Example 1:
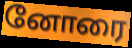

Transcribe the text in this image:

னோரை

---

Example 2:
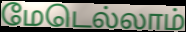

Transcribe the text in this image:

மேடெல்லாம்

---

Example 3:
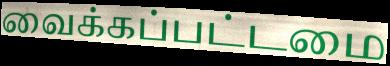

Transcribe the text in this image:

வைக்கப்பட்டமை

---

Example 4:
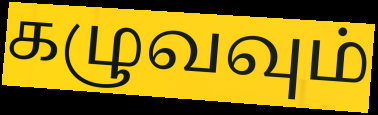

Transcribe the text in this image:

கழுவவும்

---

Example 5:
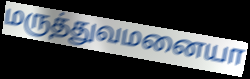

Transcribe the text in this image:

மருத்துவமனையா